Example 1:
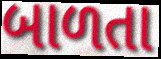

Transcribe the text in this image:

બાળતા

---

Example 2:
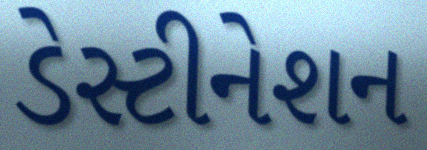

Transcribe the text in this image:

ડેસ્ટીનેશન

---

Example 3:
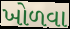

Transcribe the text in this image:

ખોળવા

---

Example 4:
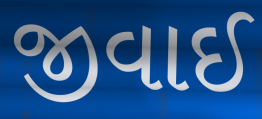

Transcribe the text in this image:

જીવાઈ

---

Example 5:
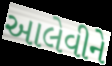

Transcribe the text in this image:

આલેવીને